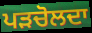
ਪੜਚੋਲਦਾ